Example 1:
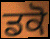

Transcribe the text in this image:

ਡਕੋ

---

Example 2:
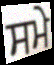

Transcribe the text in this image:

ਸਮੇ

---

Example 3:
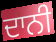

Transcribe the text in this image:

ਦਾਨੀ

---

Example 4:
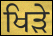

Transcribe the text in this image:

ਖਿੜੇ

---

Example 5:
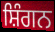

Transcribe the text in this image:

ਸ਼ਿੰਗਨ